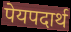
पेयपदार्थ